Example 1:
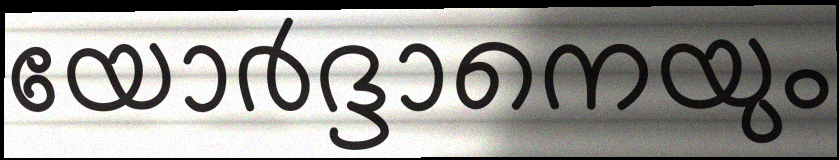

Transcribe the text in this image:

യോർദ്ദാനെയും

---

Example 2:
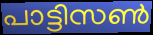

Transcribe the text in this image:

പാട്ടിസൺ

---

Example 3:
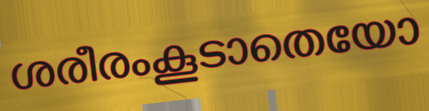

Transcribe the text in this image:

ശരീരംകൂടാതെയോ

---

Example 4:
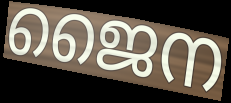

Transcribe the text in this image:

ജൈന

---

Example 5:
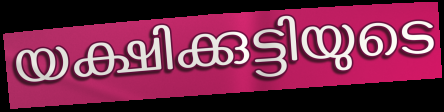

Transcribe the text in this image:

യക്ഷിക്കുട്ടിയുടെ